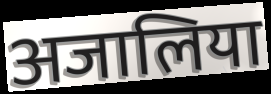
अजालिया